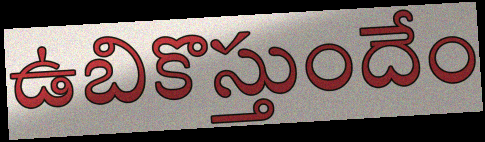
ఉబికొస్తుందేం